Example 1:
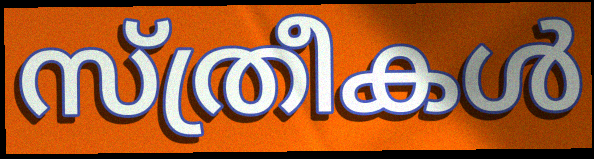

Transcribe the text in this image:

സ്ത്രീകൾ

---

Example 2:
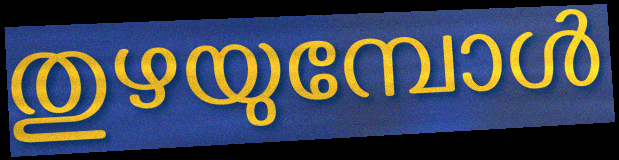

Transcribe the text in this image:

തുഴയുമ്പോൾ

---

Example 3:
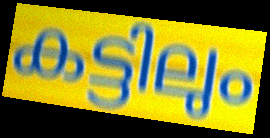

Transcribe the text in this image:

കട്ടിലും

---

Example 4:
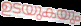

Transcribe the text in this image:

ഉടയുകയും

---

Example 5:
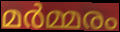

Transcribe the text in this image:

മർമ്മരം